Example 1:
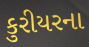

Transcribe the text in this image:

કુરીયરના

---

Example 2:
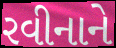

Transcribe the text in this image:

રવીનાને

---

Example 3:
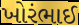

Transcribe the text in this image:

ખોરંભાઈ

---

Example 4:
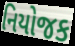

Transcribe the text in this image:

નિયોજક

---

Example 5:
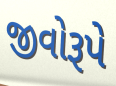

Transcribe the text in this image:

જીવોરૂપે